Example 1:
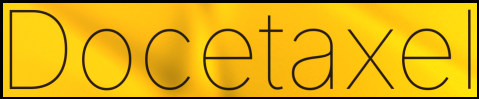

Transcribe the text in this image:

Docetaxel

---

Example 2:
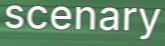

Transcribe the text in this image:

scenary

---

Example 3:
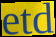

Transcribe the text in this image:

etd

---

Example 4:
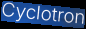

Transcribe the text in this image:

Cyclotron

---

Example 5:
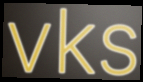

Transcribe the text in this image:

vks